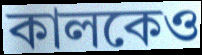
কালকেও